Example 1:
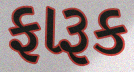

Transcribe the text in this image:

ફારૂક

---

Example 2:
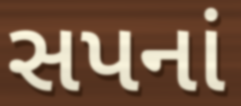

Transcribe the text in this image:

સપનાં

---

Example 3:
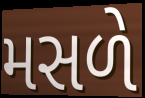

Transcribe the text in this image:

મસળે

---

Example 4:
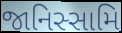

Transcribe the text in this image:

જાનિસ્સામિ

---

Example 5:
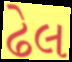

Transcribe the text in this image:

ઢેલ